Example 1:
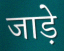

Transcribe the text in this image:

जाड़े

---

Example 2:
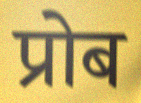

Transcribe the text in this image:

प्रोब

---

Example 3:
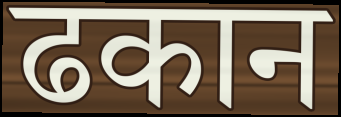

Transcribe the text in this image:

ढकान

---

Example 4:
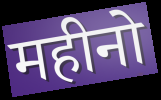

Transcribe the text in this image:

महीनो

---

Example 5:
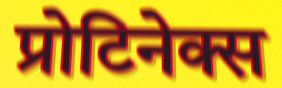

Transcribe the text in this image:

प्रोटिनेक्स